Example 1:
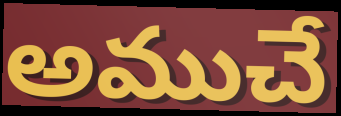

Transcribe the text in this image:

అముచే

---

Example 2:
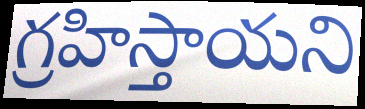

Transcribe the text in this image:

గ్రహిస్తాయని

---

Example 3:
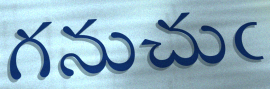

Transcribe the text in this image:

గనుచుఁ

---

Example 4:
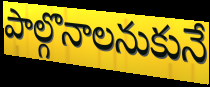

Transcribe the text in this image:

పాల్గొనాలనుకునే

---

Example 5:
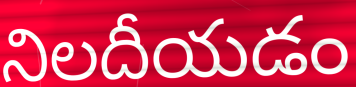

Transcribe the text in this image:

నిలదీయడం